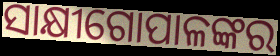
ସାକ୍ଷୀଗୋପାଳଙ୍କର